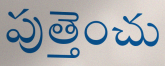
పుత్తెంచు